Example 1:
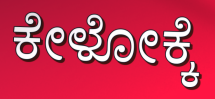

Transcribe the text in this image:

ಕೇಳೋಕ್ಕೆ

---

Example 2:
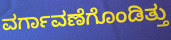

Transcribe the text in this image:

ವರ್ಗಾವಣೆಗೊಂಡಿತ್ತು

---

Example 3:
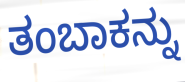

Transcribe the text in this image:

ತಂಬಾಕನ್ನು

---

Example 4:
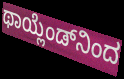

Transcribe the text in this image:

ಥಾಯ್ಲೆಂಡ್‌ನಿಂದ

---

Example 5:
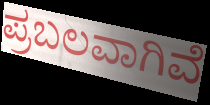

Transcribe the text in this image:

ಪ್ರಬಲವಾಗಿವೆ